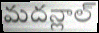
మదన్లాల్